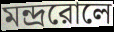
মন্দ্ররোলে